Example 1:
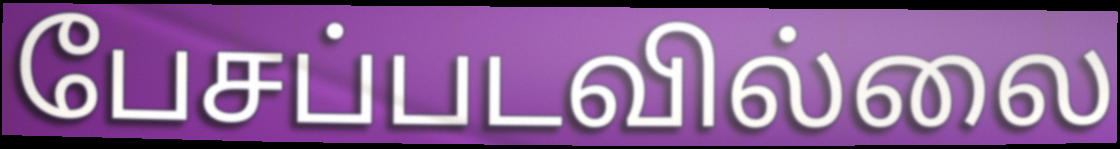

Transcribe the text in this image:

பேசப்படவில்லை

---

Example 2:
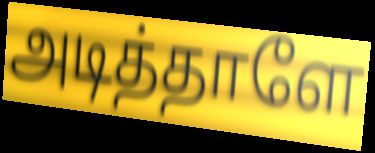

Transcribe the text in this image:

அடித்தாளே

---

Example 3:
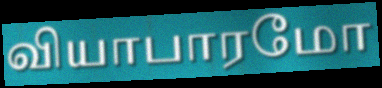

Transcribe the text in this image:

வியாபாரமோ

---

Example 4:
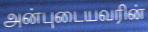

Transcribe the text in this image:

அன்புடையவரின்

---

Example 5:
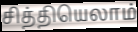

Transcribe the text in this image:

சித்தியெலாம்